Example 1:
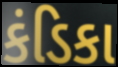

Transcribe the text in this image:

કંડિકા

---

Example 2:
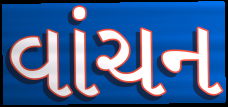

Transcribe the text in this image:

વાંચન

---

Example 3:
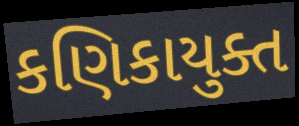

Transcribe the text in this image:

કણિકાયુક્ત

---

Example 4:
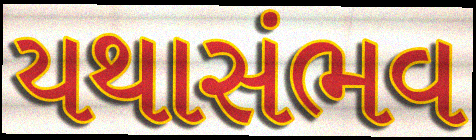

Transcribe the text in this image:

યથાસંભવ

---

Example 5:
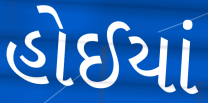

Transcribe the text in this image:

હોઈયાં